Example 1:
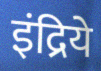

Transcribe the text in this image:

इंद्रिये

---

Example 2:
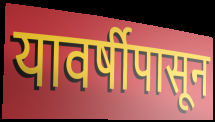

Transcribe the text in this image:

यावर्षीपासून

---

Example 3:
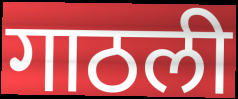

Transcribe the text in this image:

गाठली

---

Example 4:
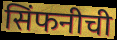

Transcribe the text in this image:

सिंफनीची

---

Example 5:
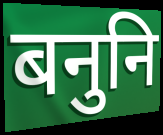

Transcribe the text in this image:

बनुनि